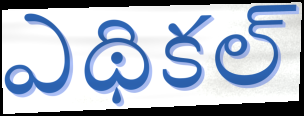
ఎథికల్